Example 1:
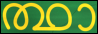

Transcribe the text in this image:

ത്ഥാ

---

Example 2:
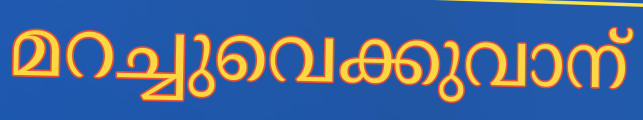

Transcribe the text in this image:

മറച്ചുവെക്കുവാന്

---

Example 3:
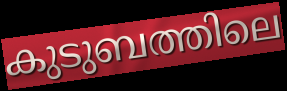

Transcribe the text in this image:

കുടുബത്തിലെ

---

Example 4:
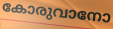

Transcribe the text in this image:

കോരുവാനോ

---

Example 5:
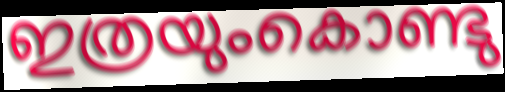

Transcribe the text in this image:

ഇത്രയുംകൊണ്ടു